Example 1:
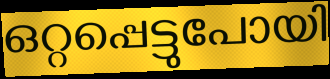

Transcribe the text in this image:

ഒറ്റപ്പെട്ടുപോയി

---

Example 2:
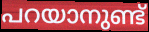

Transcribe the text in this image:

പറയാനുണ്ട്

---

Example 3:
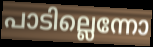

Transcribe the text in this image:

പാടില്ലെന്നോ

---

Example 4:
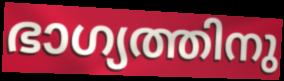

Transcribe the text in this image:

ഭാഗ്യത്തിനു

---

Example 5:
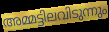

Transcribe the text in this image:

അമ്മട്ടിലവിടുന്നും